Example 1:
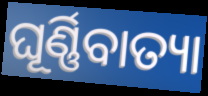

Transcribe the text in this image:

ଘୂର୍ଣ୍ଣିବାତ୍ୟା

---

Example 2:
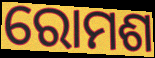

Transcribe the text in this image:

ରୋମଶ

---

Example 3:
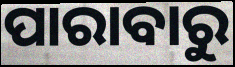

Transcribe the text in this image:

ପାରାବାରୁ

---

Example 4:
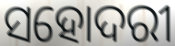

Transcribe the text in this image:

ସହୋଦରୀ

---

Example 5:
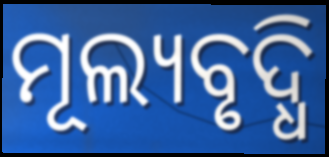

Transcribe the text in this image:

ମୂଲ୍ୟବୃଦ୍ଧି